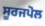
ਸੂਰਜਪੋਲ